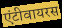
एंटीवायरस